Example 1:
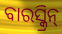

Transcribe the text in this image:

ବାରସ୍କ୍ରିନ୍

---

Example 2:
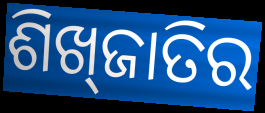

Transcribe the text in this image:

ଶିଖ୍‌ଜାତିର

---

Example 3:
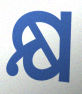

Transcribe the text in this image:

କ୍ଷ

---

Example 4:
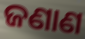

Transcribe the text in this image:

ଜଣାଣ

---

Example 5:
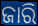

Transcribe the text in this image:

ଜାରି